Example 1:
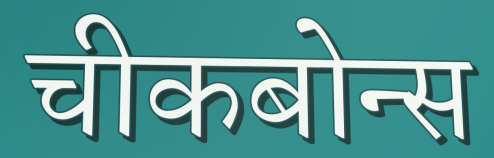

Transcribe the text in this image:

चीकबोन्स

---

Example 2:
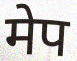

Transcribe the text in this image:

मेप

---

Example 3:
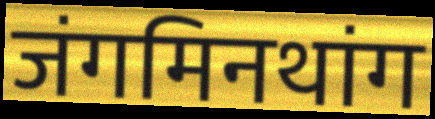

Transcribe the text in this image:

जंगमिनथांग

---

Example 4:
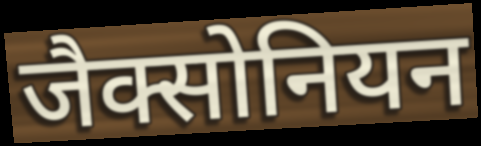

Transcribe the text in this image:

जैक्सोनियन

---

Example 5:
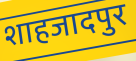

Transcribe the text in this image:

शाहजादपुर